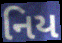
નિય